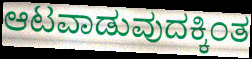
ಆಟವಾಡುವುದಕ್ಕಿಂತ